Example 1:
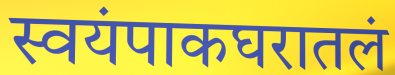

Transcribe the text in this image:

स्वयंपाकघरातलं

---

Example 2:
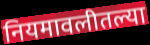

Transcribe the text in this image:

नियमावलीतल्या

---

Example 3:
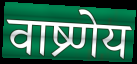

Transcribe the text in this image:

वाष्र्णेय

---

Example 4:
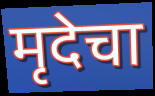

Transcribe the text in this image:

मृदेचा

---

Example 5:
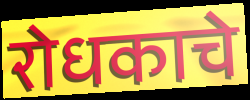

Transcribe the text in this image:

रोधकाचे